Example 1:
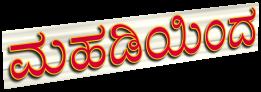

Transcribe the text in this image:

ಮಹಡಿಯಿಂದ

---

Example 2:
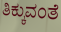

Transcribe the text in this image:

ತಿಕ್ಕುವಂತೆ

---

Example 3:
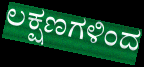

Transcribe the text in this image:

ಲಕ್ಷಣಗಳಿಂದ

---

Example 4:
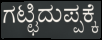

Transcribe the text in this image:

ಗಟ್ಟಿದುಪ್ಪಕ್ಕೆ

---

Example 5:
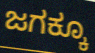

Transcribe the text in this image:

ಜಗಕ್ಕೂ